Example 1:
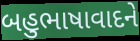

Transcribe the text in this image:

બહુભાષાવાદને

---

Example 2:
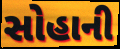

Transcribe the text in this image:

સોહાની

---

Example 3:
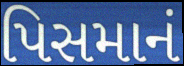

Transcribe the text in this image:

પિસમાનં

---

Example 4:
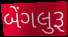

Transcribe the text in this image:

બેંગલુરૂ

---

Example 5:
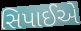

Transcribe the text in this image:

સિપાઈએ